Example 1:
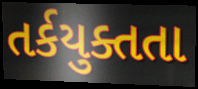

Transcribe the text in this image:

તર્કયુક્તતા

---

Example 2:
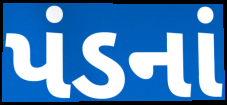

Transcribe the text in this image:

પંડનાં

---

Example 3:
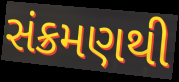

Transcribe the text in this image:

સંક્રમણથી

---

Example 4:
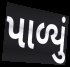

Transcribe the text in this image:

પાળ્યું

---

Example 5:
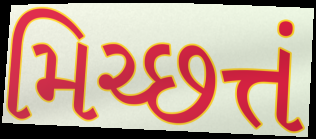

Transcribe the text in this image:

મિચ્છત્તં